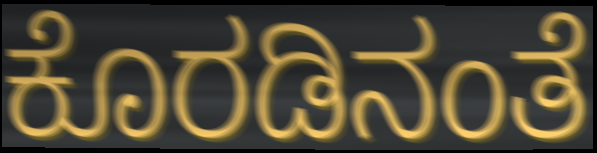
ಕೊರಡಿನಂತೆ